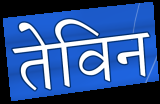
तेविन